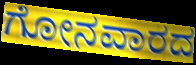
ಗೋನವಾರದ